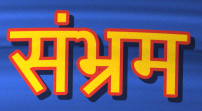
संभ्रम